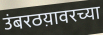
उंबरठय़ावरच्या